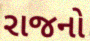
રાજનો